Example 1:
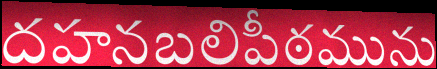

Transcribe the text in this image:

దహనబలిపీఠమును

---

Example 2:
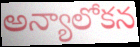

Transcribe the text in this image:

అన్యాలోకన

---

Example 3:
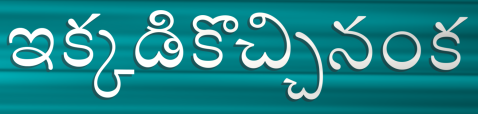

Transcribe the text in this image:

ఇక్కడికొచ్చినంక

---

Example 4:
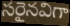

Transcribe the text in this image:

సరైనవిగా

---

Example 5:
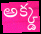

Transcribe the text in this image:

అక్క్డ